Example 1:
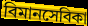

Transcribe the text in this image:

বিমানসেবিকা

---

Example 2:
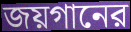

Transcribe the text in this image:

জয়গানের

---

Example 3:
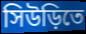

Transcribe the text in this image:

সিউড়িতে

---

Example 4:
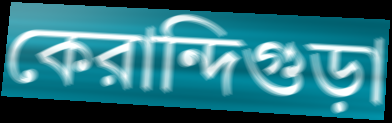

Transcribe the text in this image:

কেরান্দিগুড়া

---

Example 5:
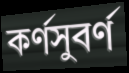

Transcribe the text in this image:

কর্ণসুবর্ণ